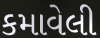
કમાવેલી